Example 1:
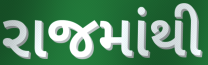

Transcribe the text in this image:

રાજમાંથી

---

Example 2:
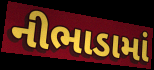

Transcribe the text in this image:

નીભાડામાં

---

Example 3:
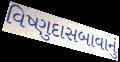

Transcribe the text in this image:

વિષ્ણુદાસબાવાનું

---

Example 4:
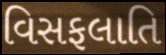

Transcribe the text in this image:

વિસફલાતિ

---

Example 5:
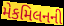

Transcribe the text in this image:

મેકમિલનની